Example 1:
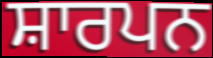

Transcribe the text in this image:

ਸ਼ਾਰਪਨ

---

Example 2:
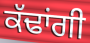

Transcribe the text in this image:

ਕੱਢਾਂਗੀ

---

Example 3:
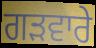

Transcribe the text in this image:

ਗੜਵਾਰੇ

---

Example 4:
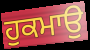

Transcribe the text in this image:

ਹੁਕਮਾਉ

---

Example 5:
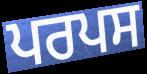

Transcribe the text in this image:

ਪਰਪਸ